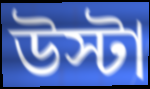
উস্টা